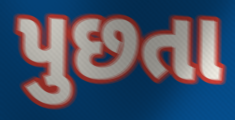
પુછતા